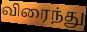
விரைந்து